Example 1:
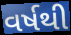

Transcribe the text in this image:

વર્ષથી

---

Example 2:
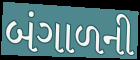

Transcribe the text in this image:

બંગાળની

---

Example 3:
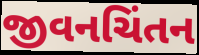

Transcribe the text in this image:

જીવનચિંતન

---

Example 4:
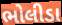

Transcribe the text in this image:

ભોલીડા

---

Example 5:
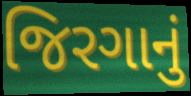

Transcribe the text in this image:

જિરગાનું